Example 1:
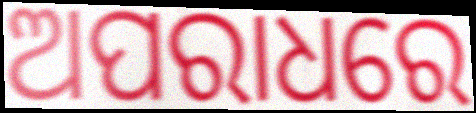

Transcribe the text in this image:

ଅପରାଧରେ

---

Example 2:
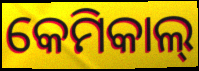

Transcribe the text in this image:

କେମିକାଲ୍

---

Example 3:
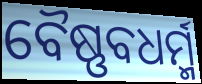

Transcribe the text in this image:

ବୈଷ୍ଣବଧର୍ମ୍ମ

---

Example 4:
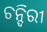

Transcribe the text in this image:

ଚନ୍ଦିରୀ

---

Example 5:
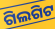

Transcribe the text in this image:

ଗିଲଗିଟ